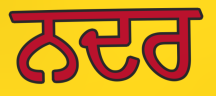
ਨਦਰ